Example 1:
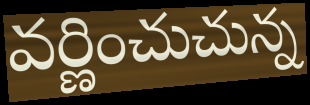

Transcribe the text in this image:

వర్ణించుచున్న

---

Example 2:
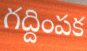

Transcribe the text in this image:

గద్దింపక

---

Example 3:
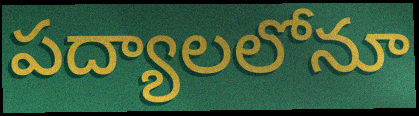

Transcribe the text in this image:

పద్యాలలోనూ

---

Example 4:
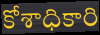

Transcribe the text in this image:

కోశాధికారి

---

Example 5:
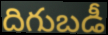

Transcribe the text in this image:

దిగుబడీ